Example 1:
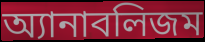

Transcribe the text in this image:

অ্যানাবলিজম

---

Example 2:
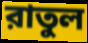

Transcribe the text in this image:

রাতুল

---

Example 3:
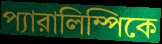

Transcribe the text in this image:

প্যারালিম্পিকে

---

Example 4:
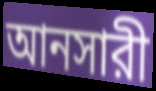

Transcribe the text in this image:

আনসারী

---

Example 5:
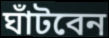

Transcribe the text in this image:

ঘাঁটবেন